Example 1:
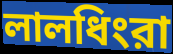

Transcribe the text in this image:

লালধিংরা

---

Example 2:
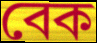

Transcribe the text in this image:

বেক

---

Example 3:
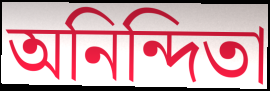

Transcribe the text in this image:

অনিন্দিতা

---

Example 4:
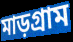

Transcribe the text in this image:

মাড়গ্রাম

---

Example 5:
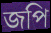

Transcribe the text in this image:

জপি